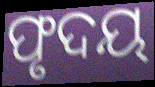
ଫୃଦୟ